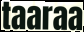
taaraa